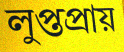
লুপ্তপ্ৰায়